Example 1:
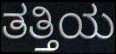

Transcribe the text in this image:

ತತ್ತಿಯ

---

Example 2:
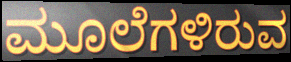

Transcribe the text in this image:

ಮೂಲೆಗಳಿರುವ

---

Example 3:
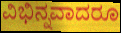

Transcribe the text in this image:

ವಿಭಿನ್ನವಾದರೂ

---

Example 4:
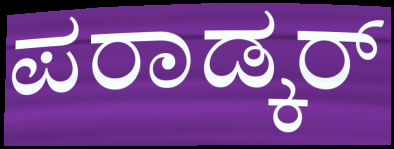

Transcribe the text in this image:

ಪರಾಡ್ಕರ್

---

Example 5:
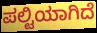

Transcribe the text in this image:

ಪಲ್ಟಿಯಾಗಿದೆ